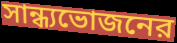
সান্ধ্যভোজনের